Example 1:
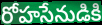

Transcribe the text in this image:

రోహసేనుడికి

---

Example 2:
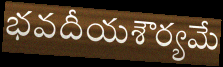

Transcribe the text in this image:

భవదీయశౌర్యమే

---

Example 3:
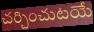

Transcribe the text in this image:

చర్చించుటయే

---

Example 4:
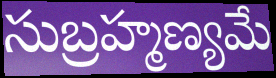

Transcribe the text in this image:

సుబ్రహ్మణ్యమే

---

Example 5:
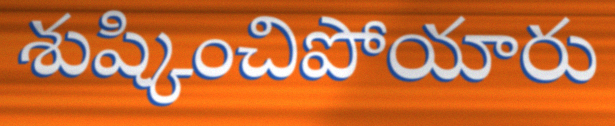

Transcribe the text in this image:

శుష్కించిపోయారు